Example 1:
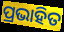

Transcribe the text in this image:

ପ୍ରଭାହିତ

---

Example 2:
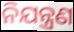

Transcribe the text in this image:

ନିଯନ୍ତ୍ରଣ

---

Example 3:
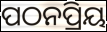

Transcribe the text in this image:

ପଠନପ୍ରିୟ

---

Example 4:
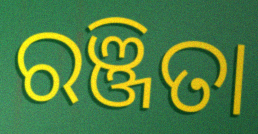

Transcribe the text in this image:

ରଞ୍ଜିତା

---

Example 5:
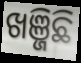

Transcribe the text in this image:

ଖଞ୍ଜିଛି